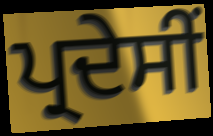
ਪ੍ਰਦੇਸੀਂ